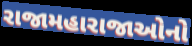
રાજામહારાજાઓનો